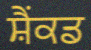
ਸ਼ੈਂਕਡ